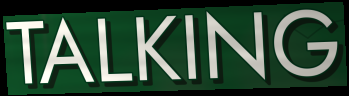
TALKING